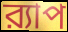
র‍্যাপ